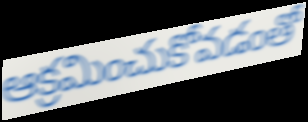
ఆక్రమించుకోవడంతో